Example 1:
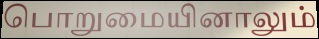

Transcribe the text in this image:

பொறுமையினாலும்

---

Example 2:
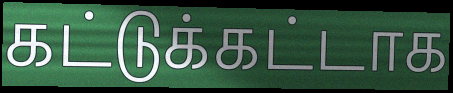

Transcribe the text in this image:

கட்டுக்கட்டாக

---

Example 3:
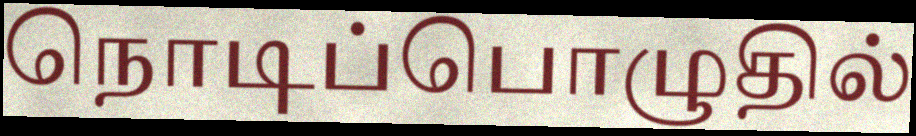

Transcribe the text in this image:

நொடிப்பொழுதில்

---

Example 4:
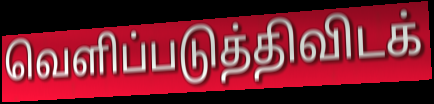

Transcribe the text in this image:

வெளிப்படுத்திவிடக்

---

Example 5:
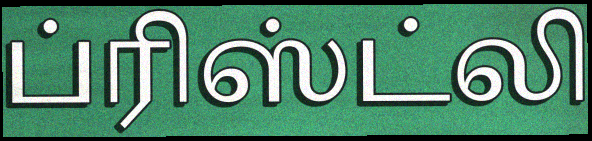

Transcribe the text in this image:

ப்ரிஸ்ட்லி